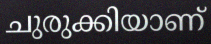
ചുരുക്കിയാണ്